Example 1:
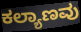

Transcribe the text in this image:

ಕಲ್ಯಾಣವು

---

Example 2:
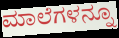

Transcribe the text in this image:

ಮಾಲೆಗಳನ್ನೂ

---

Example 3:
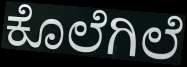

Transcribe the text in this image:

ಕೊಲೆಗಿಲೆ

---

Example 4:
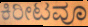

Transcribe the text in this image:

ಕಿರೀಟವೂ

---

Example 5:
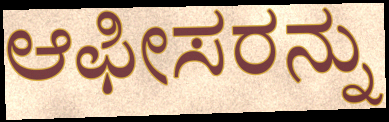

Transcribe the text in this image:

ಆಫೀಸರನ್ನು